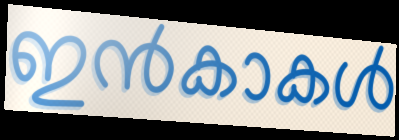
ഇൻകാകൾ